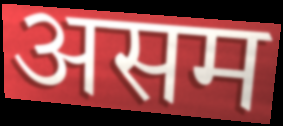
असम